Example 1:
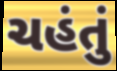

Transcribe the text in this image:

ચહંતું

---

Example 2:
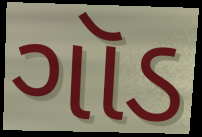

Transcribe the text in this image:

ગૉડ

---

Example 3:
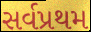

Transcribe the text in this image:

સર્વપ્રથમ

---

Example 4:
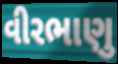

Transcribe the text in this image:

વીરભાણુ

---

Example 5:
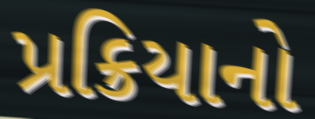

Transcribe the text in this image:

પ્રક્રિયાનો